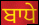
ਬਾਧੇ